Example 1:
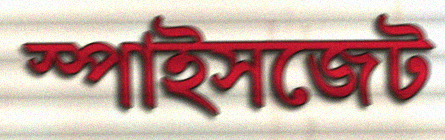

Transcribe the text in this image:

স্পাইসজেট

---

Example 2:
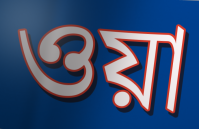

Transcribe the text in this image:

ওয়া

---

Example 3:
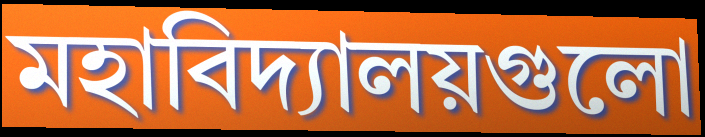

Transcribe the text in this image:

মহাবিদ্যালয়গুলো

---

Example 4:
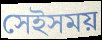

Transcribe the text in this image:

সেইসময়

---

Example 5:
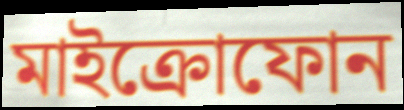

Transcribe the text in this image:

মাইক্রোফোন